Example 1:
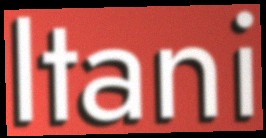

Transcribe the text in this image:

Itani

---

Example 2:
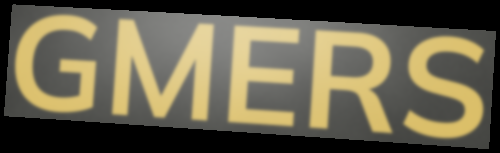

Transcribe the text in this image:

GMERS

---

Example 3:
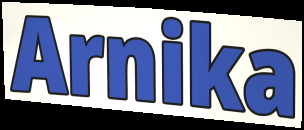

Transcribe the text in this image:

Arnika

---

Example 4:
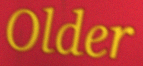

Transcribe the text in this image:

Older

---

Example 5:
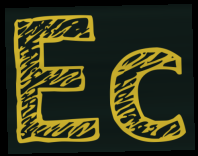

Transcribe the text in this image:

Ec